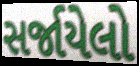
સર્જાયેલો